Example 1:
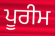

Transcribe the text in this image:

ਪੂਰੀਮ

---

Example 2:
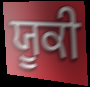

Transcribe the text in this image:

ਯੂਕੀ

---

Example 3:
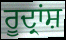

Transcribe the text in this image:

ਰੂਦ੍ਰਾਂਸ਼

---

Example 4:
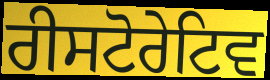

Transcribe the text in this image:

ਰੀਸਟੋਰੇਟਿਵ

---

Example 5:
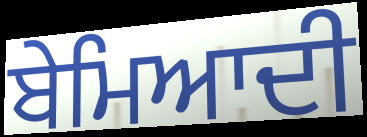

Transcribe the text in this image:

ਬੇਮਿਆਦੀ